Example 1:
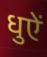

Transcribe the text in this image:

धुऐं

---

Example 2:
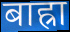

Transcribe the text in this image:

बाह्रा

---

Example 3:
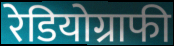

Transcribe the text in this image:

रेडियोग्राफी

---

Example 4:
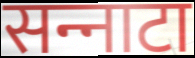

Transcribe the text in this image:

सन्‍नाटा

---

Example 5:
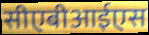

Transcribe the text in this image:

सीएबीआईएस